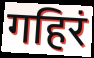
गहिरं